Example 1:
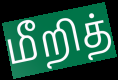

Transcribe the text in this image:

மீறித்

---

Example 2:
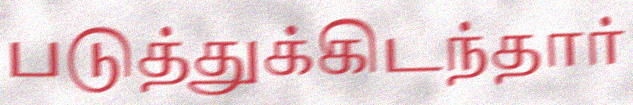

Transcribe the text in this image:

படுத்துக்கிடந்தார்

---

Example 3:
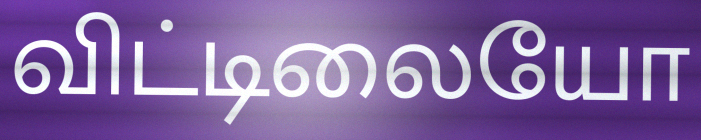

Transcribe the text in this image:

விட்டிலையோ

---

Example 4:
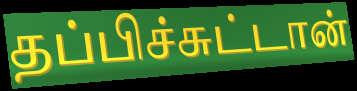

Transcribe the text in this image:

தப்பிச்சுட்டான்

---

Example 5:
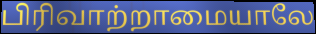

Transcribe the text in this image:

பிரிவாற்றாமையாலே